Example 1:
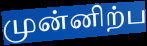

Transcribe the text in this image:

முன்னிற்ப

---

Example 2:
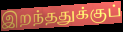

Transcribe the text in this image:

இறந்ததுக்குப்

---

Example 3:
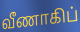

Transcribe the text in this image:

வீணாகிப்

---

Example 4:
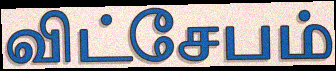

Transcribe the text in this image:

விட்சேபம்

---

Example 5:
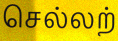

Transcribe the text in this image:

செல்லற்